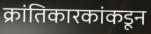
क्रांतिकारकांकडून